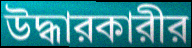
উদ্ধারকারীর